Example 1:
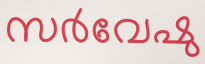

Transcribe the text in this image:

സർവേഷു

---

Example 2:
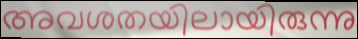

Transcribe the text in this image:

അവശതയിലായിരുന്നു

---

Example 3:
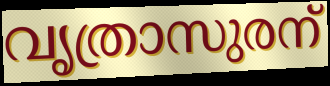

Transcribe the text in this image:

വൃത്രാസുരന്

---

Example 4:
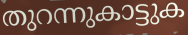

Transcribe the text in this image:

തുറന്നുകാട്ടുക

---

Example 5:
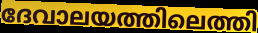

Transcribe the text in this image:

ദേവാലയത്തിലെത്തി